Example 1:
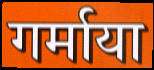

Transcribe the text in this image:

गर्माया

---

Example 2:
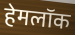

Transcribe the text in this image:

हेमलॉक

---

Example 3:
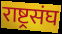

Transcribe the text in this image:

राष्ट्रसंघ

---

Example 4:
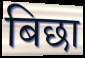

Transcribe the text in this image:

बिछा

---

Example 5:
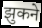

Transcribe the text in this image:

झुकने